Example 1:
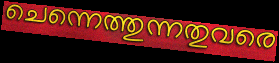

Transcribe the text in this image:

ചെന്നെത്തുന്നതുവരെ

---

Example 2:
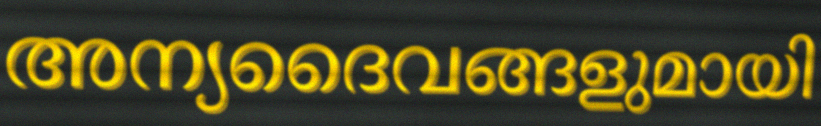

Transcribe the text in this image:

അന്യദൈവങ്ങളുമായി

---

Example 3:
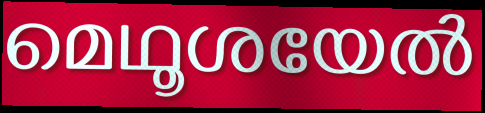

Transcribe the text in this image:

മെഥൂശയേൽ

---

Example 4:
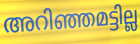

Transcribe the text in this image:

അറിഞ്ഞമട്ടില്ല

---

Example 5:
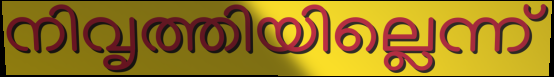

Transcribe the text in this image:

നിവൃത്തിയില്ലെന്ന്